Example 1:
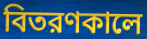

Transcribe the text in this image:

বিতরণকালে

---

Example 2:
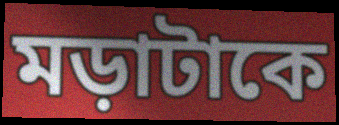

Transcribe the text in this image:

মড়াটাকে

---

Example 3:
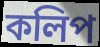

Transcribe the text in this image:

কলিপ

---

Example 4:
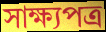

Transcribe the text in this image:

সাক্ষ্যপত্র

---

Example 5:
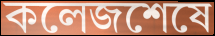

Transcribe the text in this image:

কলেজশেষে